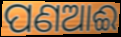
ପଣଆଈ